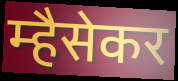
म्हैसेकर